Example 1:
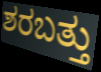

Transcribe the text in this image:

ಶರಬತ್ತು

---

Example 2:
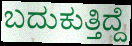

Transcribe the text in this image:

ಬದುಕುತ್ತಿದ್ದೆ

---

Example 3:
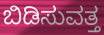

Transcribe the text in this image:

ಬಿಡಿಸುವತ್ತ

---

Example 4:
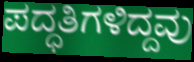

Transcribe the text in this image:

ಪದ್ಧತಿಗಳಿದ್ದವು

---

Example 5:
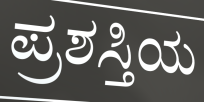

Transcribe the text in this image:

ಪ್ರಶಸ್ತಿಯ